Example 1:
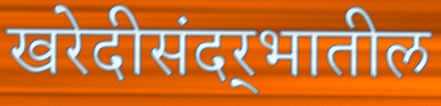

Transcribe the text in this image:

खरेदीसंदर्भातील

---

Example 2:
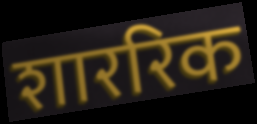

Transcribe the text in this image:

शाररिक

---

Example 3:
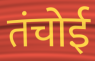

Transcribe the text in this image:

तंचोई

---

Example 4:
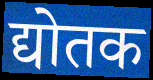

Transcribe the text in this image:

द्योतक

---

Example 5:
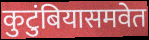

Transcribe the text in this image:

कुटुंबियासमवेत